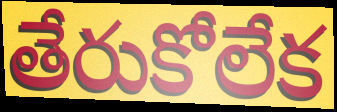
తేరుకోలేక